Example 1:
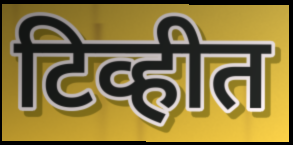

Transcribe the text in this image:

टिव्हीत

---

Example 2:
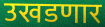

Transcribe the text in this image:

उखडणार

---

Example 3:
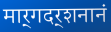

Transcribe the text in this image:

मार्गदर्शनानं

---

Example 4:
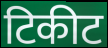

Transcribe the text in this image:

टिकीट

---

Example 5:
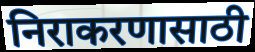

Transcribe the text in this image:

निराकरणासाठी